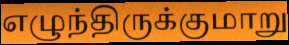
எழுந்திருக்குமாறு